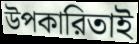
উপকারিতাই